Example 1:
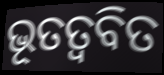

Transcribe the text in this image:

ଭୂତତ୍ଵବିତ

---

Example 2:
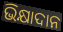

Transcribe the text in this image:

ଭିକ୍ଷାଦାନ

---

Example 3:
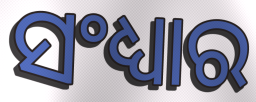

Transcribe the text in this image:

ସଂଧ୍ୟାର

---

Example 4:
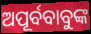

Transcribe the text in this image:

ଅପୂର୍ବବାବୁଙ୍କ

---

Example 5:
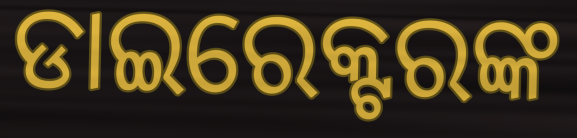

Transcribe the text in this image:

ଡାଇରେକ୍ଟରଙ୍କ